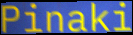
Pinaki